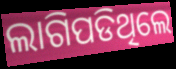
ଲାଗିପଡିଥିଲେ